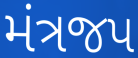
મંત્રજપ